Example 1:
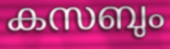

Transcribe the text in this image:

കസബും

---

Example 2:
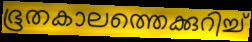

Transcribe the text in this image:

ഭൂതകാലത്തെക്കുറിച്ച്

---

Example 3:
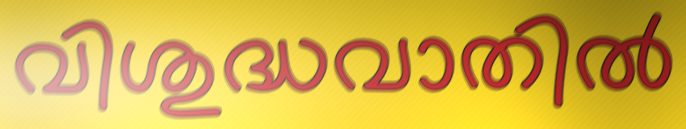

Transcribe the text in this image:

വിശുദ്ധവാതിൽ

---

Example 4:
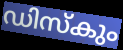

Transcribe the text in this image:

ഡിസ്കും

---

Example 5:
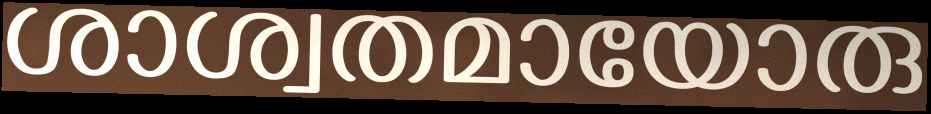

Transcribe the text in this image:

ശാശ്വതമായോരു